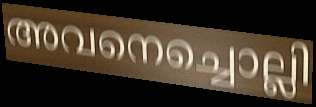
അവനെച്ചൊല്ലി